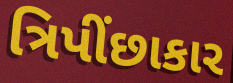
ત્રિપીંછાકાર